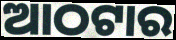
ଆଠଟାର